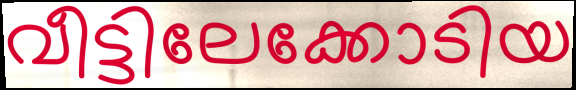
വീട്ടിലേക്കോടിയ